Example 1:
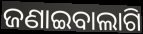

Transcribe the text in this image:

ଜଣାଇବାଲାଗି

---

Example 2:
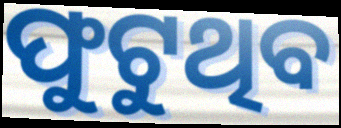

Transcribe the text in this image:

ଫୁଟୁଥିବ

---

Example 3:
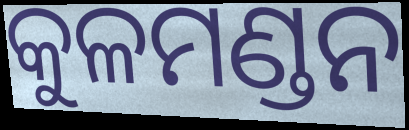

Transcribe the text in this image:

କୁଳମଣ୍ଡନ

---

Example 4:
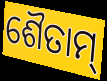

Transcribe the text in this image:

ଶୈତାମ୍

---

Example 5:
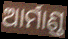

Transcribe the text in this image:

ଆର୍ମାଣ୍ଡ